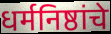
धर्मनिष्ठांचे